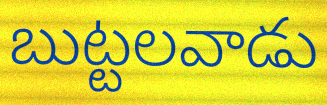
బుట్టలవాడు